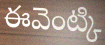
ఈవెంట్కి